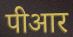
पीआर